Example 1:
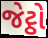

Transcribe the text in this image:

જેટ્ઠો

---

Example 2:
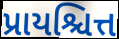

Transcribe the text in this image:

પ્રાયશ્ચિત્ત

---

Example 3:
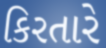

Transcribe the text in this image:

કિરતારે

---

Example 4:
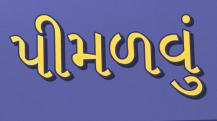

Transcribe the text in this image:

પીમળવું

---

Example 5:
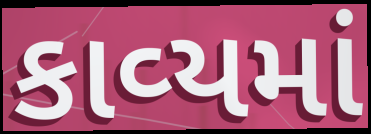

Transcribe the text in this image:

કાવ્‍યમાં